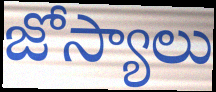
జోస్యాలు